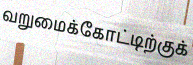
வறுமைக்கோட்டிற்குக்